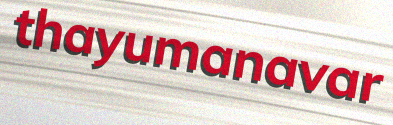
thayumanavar